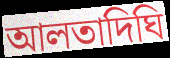
আলতাদিঘি